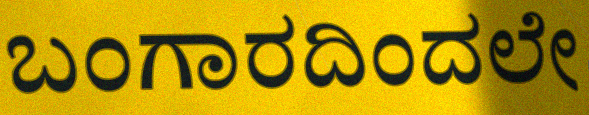
ಬಂಗಾರದಿಂದಲೇ